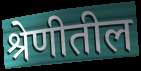
श्रेणीतील